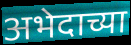
अभेदाच्या